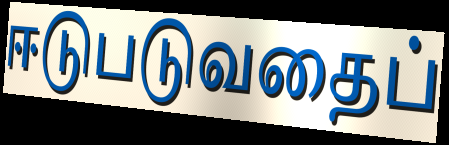
ஈடுபடுவதைப்